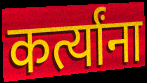
कर्त्यांना